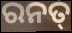
ରନତ୍